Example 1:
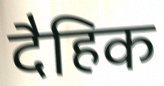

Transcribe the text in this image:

दैहिक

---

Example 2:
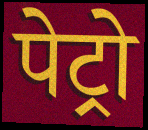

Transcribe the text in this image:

पेट्रो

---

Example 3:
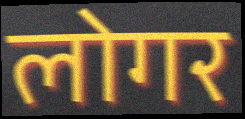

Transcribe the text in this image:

लोगर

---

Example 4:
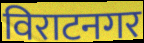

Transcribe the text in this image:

विराटनगर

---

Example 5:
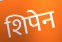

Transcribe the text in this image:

शिपेन